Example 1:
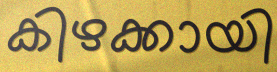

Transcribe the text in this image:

കിഴക്കായി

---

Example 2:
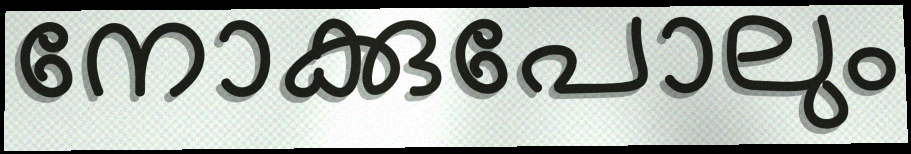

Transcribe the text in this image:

നോക്കുപോലും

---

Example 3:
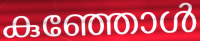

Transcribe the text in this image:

കുഞ്ഞോൾ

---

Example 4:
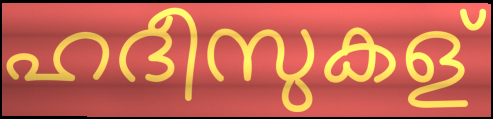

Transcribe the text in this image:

ഹദീസുകള്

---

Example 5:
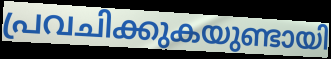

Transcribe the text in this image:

പ്രവചിക്കുകയുണ്ടായി